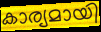
കാര്യമായി